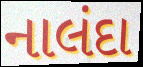
નાલંદા